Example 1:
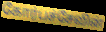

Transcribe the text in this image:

கோர்பச்சேவின்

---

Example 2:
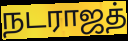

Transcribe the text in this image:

நடராஜத்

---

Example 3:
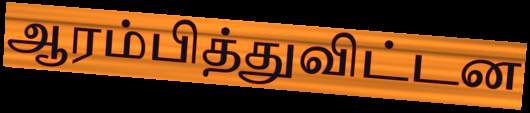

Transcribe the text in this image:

ஆரம்பித்துவிட்டன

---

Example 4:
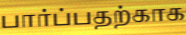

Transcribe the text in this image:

பார்ப்பதற்காக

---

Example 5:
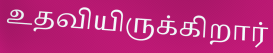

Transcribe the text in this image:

உதவியிருக்கிறார்